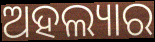
ଅହଲ୍ୟାର